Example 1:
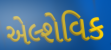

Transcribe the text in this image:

એલ્શેવિક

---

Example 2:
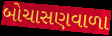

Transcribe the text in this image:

બોચાસણવાળા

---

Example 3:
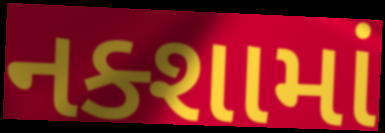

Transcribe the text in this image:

નક્શામાં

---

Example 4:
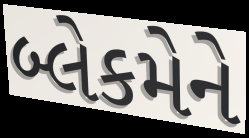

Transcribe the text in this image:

બ્લેકમેને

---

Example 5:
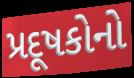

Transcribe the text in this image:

પ્રદૂષકોનો